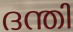
ദന്തി